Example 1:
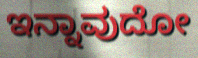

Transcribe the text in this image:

ಇನ್ನಾವುದೋ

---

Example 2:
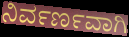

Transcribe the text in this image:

ನಿರ್ವರ್ಣವಾಗಿ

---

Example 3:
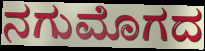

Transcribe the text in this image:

ನಗುಮೊಗದ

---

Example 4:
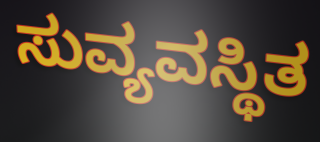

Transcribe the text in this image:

ಸುವ್ಯವಸ್ಥಿತ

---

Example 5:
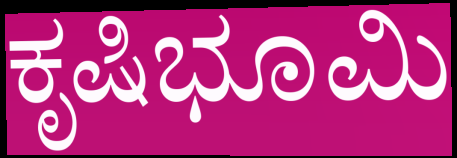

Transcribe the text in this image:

ಕೃಷಿಭೂಮಿ